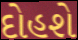
દોહશે